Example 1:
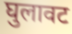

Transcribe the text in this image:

घुलावट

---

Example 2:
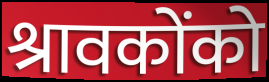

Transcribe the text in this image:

श्रावकोंको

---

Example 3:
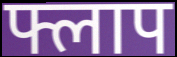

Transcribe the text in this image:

फ्लाप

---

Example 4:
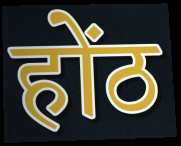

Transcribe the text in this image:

होंठ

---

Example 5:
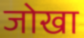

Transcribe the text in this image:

जोखा